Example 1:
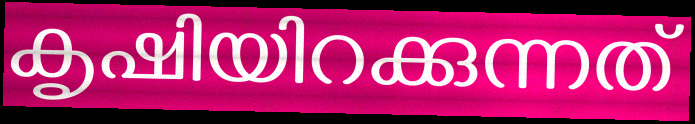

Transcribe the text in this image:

കൃഷിയിറക്കുന്നത്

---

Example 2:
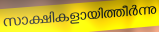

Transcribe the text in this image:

സാക്ഷികളായിത്തീർന്നു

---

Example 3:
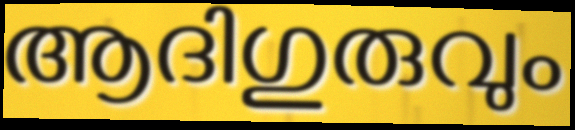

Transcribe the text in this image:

ആദിഗുരുവും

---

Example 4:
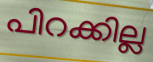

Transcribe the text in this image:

പിറക്കില്ല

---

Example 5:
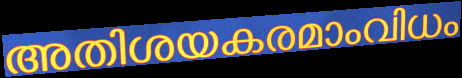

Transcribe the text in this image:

അതിശയകരമാംവിധം